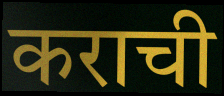
कराची